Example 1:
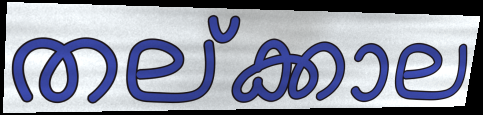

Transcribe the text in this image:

തല്ക്കാല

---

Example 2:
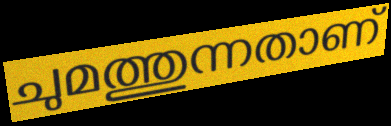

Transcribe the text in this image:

ചുമത്തുന്നതാണ്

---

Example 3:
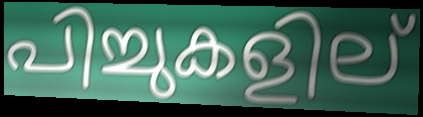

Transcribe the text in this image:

പിച്ചുകളില്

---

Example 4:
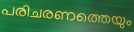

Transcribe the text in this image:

പരിചരണത്തെയും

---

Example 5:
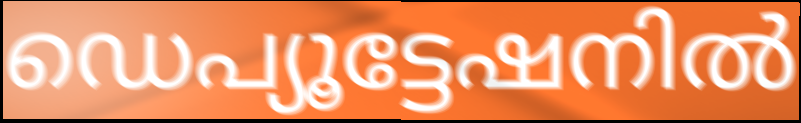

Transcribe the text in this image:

ഡെപ്യൂട്ടേഷനിൽ